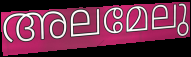
അലമേലു